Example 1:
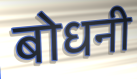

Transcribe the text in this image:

बोधनी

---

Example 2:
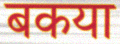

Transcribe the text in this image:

बकया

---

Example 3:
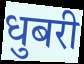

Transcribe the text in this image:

धुबरी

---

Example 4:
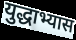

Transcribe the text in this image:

युद्धाभ्यास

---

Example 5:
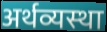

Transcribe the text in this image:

अर्थव्यस्था